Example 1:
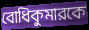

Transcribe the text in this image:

বোধিকুমারকে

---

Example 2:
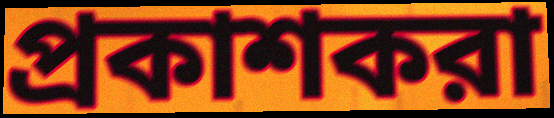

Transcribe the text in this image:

প্রকাশকরা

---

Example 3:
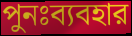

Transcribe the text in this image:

পুনঃব্যবহার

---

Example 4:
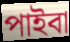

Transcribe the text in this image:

পাইবা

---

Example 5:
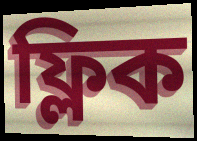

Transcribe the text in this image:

ফ্লিক